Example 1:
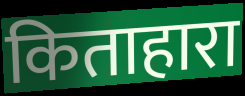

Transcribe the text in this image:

किताहारा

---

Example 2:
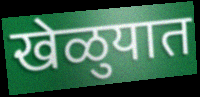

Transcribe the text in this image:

खेळुयात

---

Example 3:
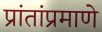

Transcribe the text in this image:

प्रांतांप्रमाणे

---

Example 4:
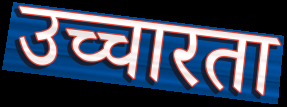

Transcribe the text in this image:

उच्चारता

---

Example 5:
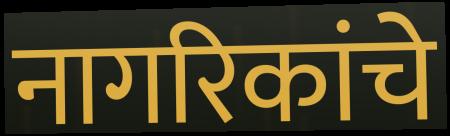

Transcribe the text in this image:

नागरिकांचे